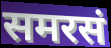
समरसं